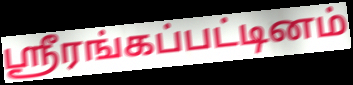
ஸ்ரீரங்கப்பட்டினம்